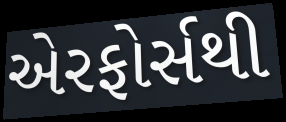
એરફોર્સથી